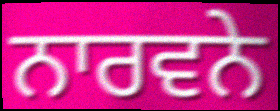
ਨਾਰਵਨੇ